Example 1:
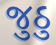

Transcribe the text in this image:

જુઠુ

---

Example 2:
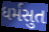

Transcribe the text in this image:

ધર્મસુત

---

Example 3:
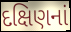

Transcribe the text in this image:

દક્ષિણનાં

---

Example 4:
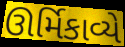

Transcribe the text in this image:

ઊર્મિકાવ્યે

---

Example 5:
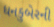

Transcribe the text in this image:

ધનકુબેરની